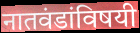
नातवंडांविषयी